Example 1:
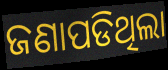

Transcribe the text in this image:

ଜଣାପଡିଥିଲା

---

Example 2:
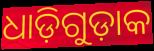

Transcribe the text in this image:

ଧାଡ଼ିଗୁଡ଼ାକ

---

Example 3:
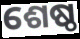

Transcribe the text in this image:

ଶେଷ୍ଠ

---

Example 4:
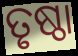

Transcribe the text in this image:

ତୃଷ୍ଠା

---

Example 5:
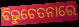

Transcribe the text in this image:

ବିଭୁଚେତନାରେ